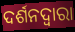
ଦର୍ଶନଦ୍ୱାରା